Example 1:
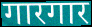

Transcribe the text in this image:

गारगार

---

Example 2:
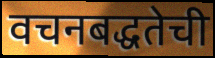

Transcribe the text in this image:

वचनबद्धतेची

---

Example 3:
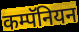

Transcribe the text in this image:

कम्पॅनियन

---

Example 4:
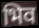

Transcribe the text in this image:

भिव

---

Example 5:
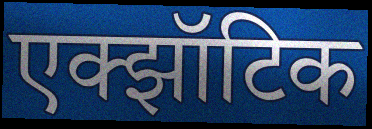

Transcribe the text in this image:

एक्झॉटिक